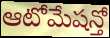
ఆటోమేషన్తో